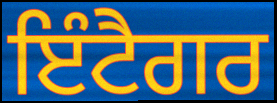
ਇੰਟੈਗਰ